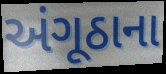
અંગૂઠાના